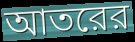
আতরের